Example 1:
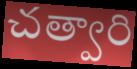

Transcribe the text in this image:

చత్వారి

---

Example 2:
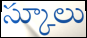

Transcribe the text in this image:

స్కూలు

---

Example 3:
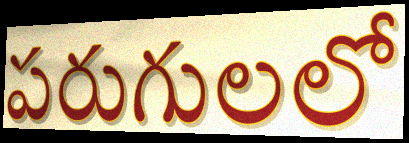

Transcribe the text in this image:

పరుగులలో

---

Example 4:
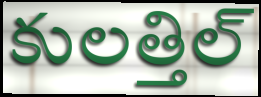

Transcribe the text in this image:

కులత్తిల్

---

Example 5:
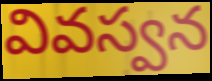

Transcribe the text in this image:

వివస్వన